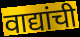
वाद्यांची